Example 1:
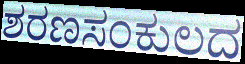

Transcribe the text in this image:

ಶರಣಸಂಕುಲದ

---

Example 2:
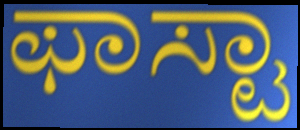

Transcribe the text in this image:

ಫಾಸ್ಟಾ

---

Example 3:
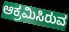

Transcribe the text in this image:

ಆಕ್ರಮಿಸಿರುವ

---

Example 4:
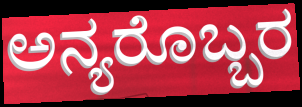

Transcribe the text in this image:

ಅನ್ಯರೊಬ್ಬರ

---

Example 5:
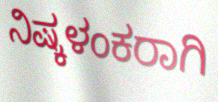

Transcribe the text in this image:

ನಿಷ್ಕಳಂಕರಾಗಿ